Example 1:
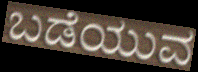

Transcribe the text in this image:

ಬಡೆಯುವ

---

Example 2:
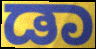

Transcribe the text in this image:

ಡಾ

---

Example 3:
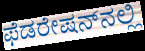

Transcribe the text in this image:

ಫೆಡರೇಷನ್‌ನಲ್ಲಿ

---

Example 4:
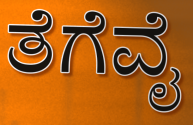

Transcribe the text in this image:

ತೆಗೆವೈ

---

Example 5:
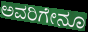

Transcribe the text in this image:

ಅವರಿಗೇನೂ